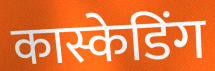
कास्केडिंग